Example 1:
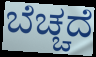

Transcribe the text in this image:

ಬೆಚ್ಚದೆ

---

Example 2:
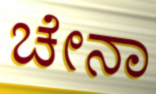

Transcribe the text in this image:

ಚೇನಾ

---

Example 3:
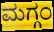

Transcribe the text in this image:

ಮಗ್ಗಂ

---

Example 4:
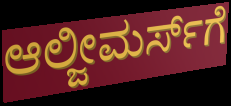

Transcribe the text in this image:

ಆಲ್ಜೀಮರ್ಸ್‌ಗೆ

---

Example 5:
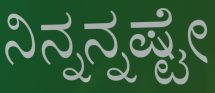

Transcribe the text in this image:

ನಿನ್ನನ್ನಷ್ಟೇ